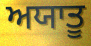
ਅਯਾਤੂ